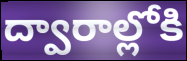
ద్వారాల్లోకి